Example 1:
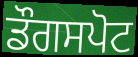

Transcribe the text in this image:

ਡੌਗਸਪੋਟ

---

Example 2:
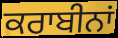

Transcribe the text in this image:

ਕਰਾਬੀਨਾਂ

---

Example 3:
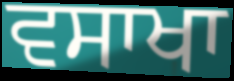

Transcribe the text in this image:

ਵਸਾਖਾ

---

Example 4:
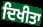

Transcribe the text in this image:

ਦਿਖੀਤਾ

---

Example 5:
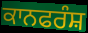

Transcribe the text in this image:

ਕਾਨਫਰੰਸ਼